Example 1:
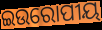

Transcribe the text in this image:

ଇଉରୋପୀୟ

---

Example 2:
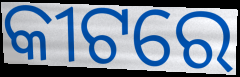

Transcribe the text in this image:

କୀଟରେ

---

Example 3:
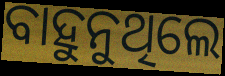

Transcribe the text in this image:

ବାହୁନୁଥିଲେ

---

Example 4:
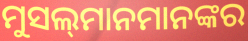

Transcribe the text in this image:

ମୁସଲ୍‌ମାନମାନଙ୍କର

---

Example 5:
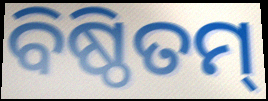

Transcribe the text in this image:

ବିଷ୍ଠିତମ୍